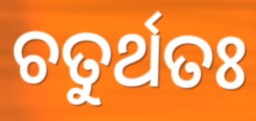
ଚତୁର୍ଥତଃ